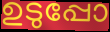
ഉടുപ്പോ